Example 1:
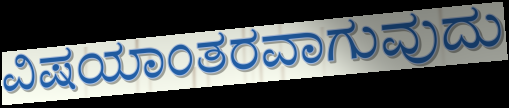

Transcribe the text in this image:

ವಿಷಯಾಂತರವಾಗುವುದು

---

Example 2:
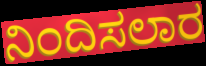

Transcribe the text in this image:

ನಿಂದಿಸಲಾರ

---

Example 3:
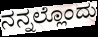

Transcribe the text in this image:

ನನ್ನಲ್ಲೊಂದು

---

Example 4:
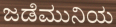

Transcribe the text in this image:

ಜಡೆಮುನಿಯ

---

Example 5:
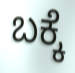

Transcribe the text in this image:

ಬಕ್ಕೆ